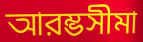
আরম্ভসীমা